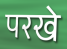
परखे